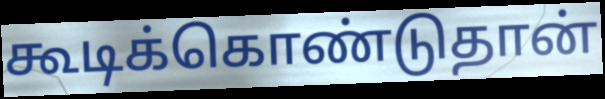
கூடிக்கொண்டுதான்